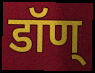
डॉण्